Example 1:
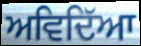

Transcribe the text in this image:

ਅਵਿਦਿੱਆ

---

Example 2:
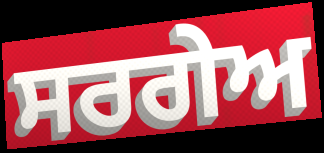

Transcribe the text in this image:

ਸਰਗੇਅ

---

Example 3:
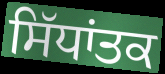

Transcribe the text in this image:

ਸਿੱਧਾਂਤਕ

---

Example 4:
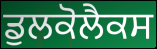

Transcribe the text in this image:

ਡੁਲਕੋਲੈਕਸ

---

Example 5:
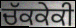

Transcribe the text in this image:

ਚੱਕਕੇਕੀ